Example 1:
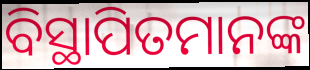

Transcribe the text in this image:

ବିସ୍ଥାପିତମାନଙ୍କ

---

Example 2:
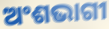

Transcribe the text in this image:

ଅଂଶଭାଗୀ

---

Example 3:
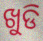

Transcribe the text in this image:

ଖୁଡି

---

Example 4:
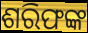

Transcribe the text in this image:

ଶରିଫଙ୍କ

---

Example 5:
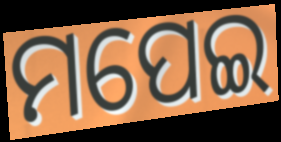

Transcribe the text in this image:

ମପେଇ